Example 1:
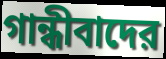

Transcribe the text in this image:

গান্ধীবাদের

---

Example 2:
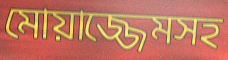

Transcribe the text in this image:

মোয়াজ্জেমসহ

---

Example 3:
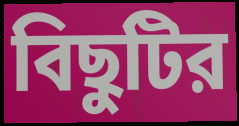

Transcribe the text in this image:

বিছুটির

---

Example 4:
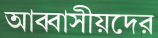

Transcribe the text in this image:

আব্বাসীয়দের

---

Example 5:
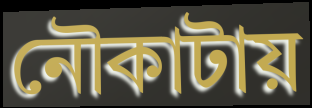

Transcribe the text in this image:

নৌকাটায়